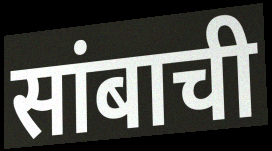
सांबाची